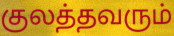
குலத்தவரும்